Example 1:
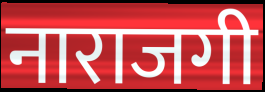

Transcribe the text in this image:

नाराजगी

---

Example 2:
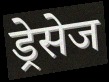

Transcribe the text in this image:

ड्रेसेज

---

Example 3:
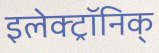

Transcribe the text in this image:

इलेक्ट्रॉनिक्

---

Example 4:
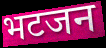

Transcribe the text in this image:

भटजन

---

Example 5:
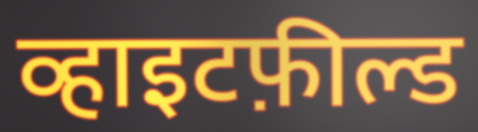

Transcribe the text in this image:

व्हाइटफ़ील्ड